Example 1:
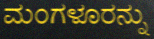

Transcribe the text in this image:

ಮಂಗಳೂರನ್ನು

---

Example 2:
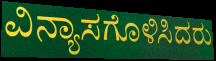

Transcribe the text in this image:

ವಿನ್ಯಾಸಗೊಳಿಸಿದರು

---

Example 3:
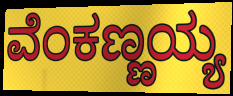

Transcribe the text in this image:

ವೆಂಕಣ್ಣಯ್ಯ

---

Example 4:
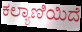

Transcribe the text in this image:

ಕಲ್ಯಾಣಿಯಿದೆ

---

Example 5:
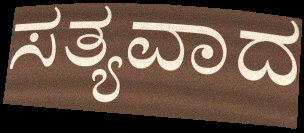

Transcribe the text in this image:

ಸತ್ಯವಾದ